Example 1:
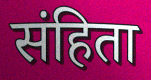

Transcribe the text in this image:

संहिता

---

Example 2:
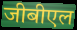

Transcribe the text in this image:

जीबीएल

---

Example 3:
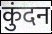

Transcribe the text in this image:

कुंदन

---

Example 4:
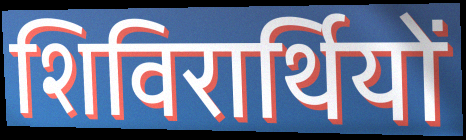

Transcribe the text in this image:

शिविरार्थियों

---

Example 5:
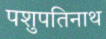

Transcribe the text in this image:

पशुपतिनाथ